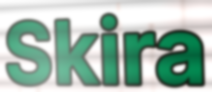
Skira